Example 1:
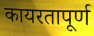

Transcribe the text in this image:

कायरतापूर्ण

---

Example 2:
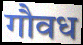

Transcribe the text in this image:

गौवध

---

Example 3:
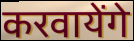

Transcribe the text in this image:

करवायेंगे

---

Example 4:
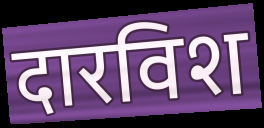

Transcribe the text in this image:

दारविश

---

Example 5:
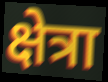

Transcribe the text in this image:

क्षेत्रा